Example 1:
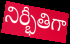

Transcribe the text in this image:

నిర్భీతిగా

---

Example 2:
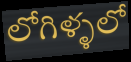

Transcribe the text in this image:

లోగిళ్ళలో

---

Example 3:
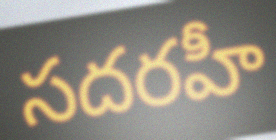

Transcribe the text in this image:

సదరహీ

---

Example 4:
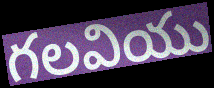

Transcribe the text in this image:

గలవియు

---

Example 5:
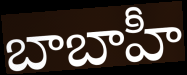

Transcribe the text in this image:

బాబాహీ